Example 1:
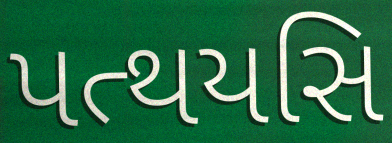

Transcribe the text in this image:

પત્થયસિ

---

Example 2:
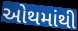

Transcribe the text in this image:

ઓથમાંથી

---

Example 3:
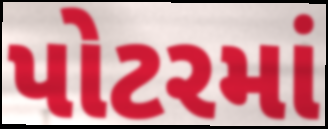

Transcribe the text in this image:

પોટરમાં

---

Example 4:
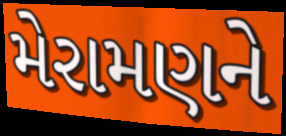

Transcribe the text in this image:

મેરામણને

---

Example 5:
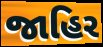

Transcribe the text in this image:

જાહિર